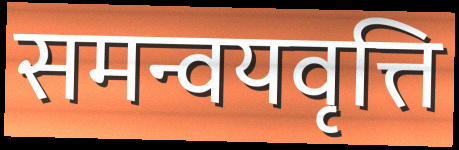
समन्वयवृत्ति